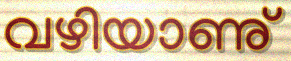
വഴിയാണു്